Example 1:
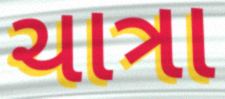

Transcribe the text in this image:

ચાત્રા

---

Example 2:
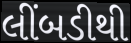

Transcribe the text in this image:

લીંબડીથી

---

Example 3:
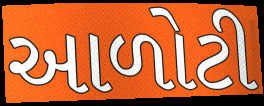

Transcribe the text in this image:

આળોટી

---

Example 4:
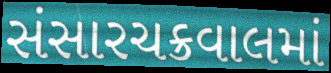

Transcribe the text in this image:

સંસારચક્રવાલમાં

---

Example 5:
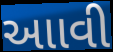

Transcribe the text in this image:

આાવી